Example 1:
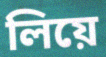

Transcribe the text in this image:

লিয়ে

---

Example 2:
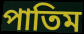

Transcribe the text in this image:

পাতিম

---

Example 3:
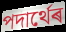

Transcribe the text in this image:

পদাৰ্থেৰ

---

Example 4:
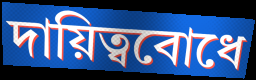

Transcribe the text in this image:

দায়িত্ববোধে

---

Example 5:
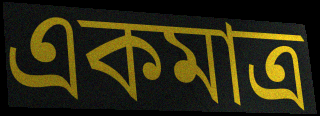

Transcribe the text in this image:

একমাত্ৰ